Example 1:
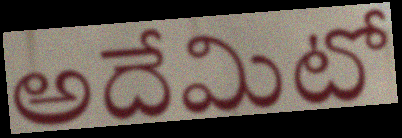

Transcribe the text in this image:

అదేమిటో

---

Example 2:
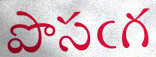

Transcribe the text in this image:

పొసఁగ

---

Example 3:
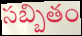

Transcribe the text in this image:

సబ్బితం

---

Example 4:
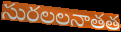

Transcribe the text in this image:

సురలలనాతత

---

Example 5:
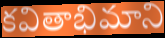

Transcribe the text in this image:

కవితాభిమాని